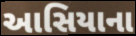
આસિયાના